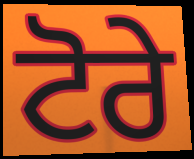
ਟੋਰੇ